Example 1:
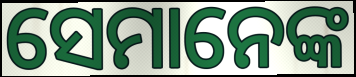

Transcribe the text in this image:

ସେମାନେଙ୍କ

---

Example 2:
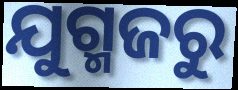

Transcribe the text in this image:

ଯୁଗ୍ମଜରୁ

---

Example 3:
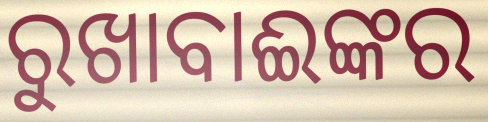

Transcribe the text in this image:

ରୁଖାବାଈଙ୍କର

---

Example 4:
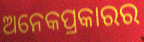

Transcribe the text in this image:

ଅନେକପ୍ରକାରର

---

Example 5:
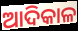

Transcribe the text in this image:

ଆଦିକାଳ